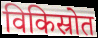
विकिस्रोत